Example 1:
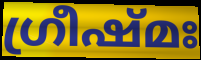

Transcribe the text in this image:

ഗ്രീഷ്മഃ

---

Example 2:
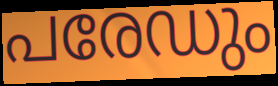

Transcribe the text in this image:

പരേഡും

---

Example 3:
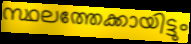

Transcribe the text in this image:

സ്ഥലത്തേക്കായിട്ടും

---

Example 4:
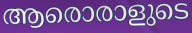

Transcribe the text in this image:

ആരൊരാളുടെ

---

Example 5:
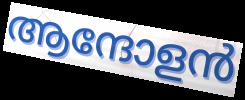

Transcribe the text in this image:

ആന്ദോളൻ